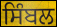
ਸਿੰਬਲ